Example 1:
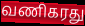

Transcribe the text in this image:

வணிகரது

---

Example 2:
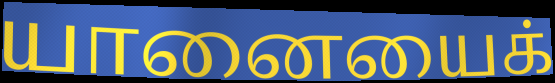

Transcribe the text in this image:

யானையைக்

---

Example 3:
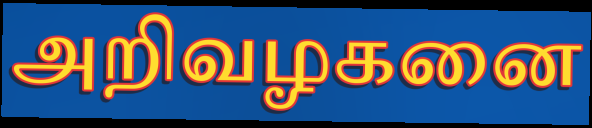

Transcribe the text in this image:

அறிவழகனை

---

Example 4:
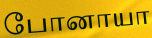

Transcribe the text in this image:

போனாயா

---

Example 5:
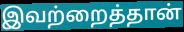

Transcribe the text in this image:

இவற்றைத்தான்